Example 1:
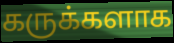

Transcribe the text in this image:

கருக்களாக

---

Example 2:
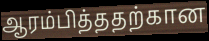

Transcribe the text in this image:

ஆரம்பித்ததற்கான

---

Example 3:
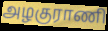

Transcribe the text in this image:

அழகுராணி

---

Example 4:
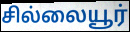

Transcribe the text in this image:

சில்லையூர்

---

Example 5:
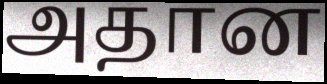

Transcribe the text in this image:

அதான